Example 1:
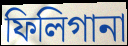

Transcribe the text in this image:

ফিলিগানা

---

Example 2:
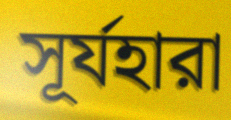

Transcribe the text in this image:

সূর্যহারা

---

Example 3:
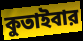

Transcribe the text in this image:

কুতাইবার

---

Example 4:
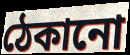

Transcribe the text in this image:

ঠেকানো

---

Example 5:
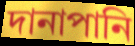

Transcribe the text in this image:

দানাপানি